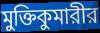
মুক্তিকুমারীর